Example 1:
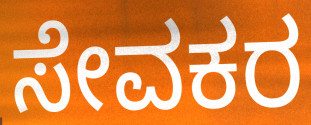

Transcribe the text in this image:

ಸೇವಕರ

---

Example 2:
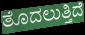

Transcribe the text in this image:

ತೊದಲುತ್ತಿದೆ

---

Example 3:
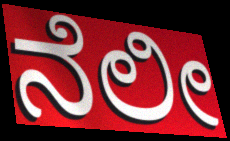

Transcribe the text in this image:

ನೆಲೀ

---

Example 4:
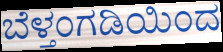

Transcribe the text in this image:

ಬೆಳ್ತಂಗಡಿಯಿಂದ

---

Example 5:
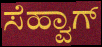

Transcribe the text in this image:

ಸೆಹ್ವಾಗ್